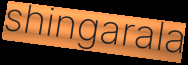
shingarala